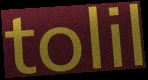
tolil